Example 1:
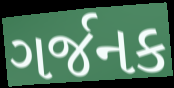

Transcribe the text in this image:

ગર્જનક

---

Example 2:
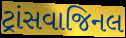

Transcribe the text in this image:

ટ્રાંસવાજિનલ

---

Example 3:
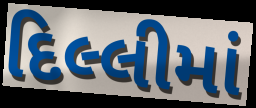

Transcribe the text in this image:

દિલ્લીમાં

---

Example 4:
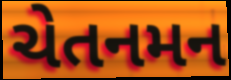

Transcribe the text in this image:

ચેતનમન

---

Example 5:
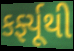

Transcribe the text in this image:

કર્ફ્યૂથી